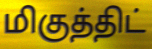
மிகுத்திட்